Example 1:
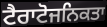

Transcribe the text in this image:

ਟੈਰਾਟੋਜਨਿਕਤਾ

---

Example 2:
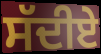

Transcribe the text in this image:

ਸੱਦੀਏ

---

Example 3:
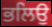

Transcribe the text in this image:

ਭਲਿਉ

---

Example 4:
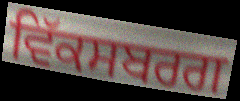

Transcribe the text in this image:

ਵਿੱਕਸਬਰਗ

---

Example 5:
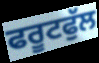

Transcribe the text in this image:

ਫਰੂਟਫੁੱਲ